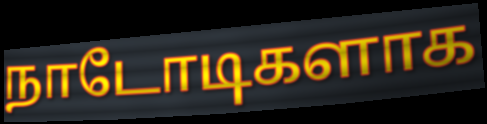
நாடோடிகளாக